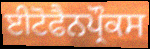
ਈਟੋਫੈਨਪ੍ਰੌਕਸ